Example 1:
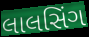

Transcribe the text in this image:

લાલસિંગ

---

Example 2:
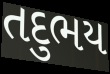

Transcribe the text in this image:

તદુભય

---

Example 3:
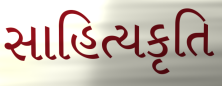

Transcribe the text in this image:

સાહિત્યકૃતિ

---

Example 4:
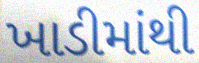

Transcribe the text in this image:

ખાડીમાંથી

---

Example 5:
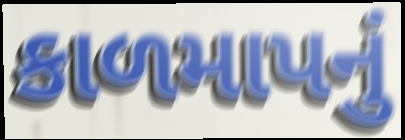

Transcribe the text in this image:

કાળમાપનું